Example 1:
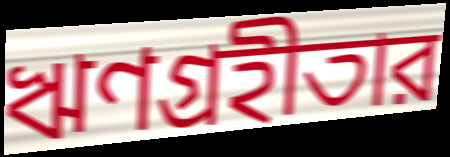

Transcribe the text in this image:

ঋণগ্রহীতার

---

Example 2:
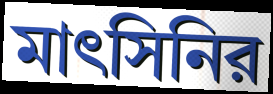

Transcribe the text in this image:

মাৎসিনির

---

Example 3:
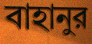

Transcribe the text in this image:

বাহানুর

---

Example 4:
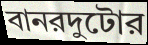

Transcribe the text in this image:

বানরদুটোর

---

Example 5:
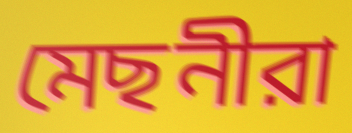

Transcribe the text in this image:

মেছনীরা